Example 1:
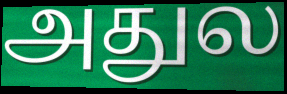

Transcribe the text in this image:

அதுல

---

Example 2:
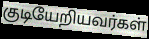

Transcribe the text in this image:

குடியேறியவர்கள்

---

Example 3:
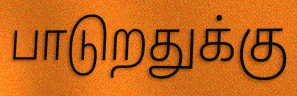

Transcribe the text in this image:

பாடுறதுக்கு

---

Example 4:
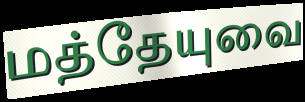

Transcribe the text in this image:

மத்தேயுவை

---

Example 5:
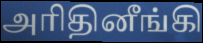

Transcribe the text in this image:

அரிதினீங்கி